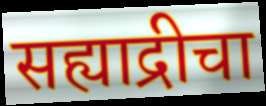
सह्याद्रीचा